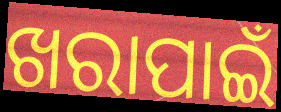
ଖରାପାଇଁ